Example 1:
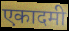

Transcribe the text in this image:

एकादमी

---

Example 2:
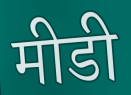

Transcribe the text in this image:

मीडी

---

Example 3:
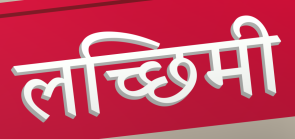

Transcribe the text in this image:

लच्छिमी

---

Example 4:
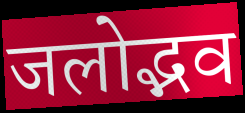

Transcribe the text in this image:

जलोद्भव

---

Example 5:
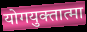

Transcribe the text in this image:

योगयुक्तात्मा